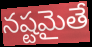
నష్టమైతే